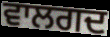
ਵਾਲਗਦ